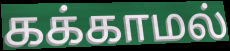
கக்காமல்